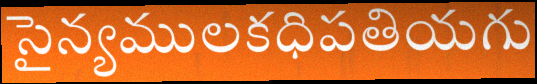
సైన్యములకధిపతియగు